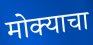
मोक्याचा